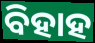
ବିହାହ